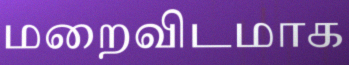
மறைவிடமாக